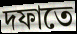
দফাতে